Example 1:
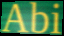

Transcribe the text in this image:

Abi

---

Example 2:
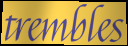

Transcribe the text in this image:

trembles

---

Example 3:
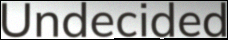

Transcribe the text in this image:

Undecided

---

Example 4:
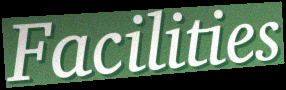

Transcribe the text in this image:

Facilities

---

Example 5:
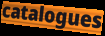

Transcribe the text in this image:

catalogues